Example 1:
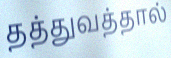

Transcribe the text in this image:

தத்துவத்தால்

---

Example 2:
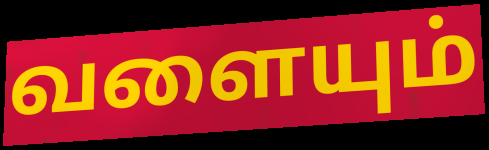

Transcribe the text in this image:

வளையும்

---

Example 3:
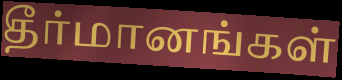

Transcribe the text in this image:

தீர்மானங்கள்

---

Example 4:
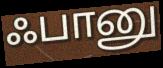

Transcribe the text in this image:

ஃபானு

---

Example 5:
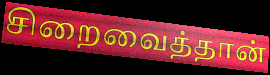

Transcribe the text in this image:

சிறைவைத்தான்